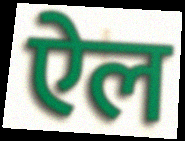
ऐल